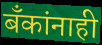
बँकांनाही